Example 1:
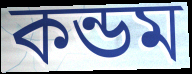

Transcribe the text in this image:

কন্ডম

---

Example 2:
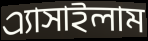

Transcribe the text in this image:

এ্যাসাইলাম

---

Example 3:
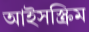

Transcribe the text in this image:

আইসস্ক্রিম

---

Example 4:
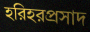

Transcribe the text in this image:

হরিহরপ্রসাদ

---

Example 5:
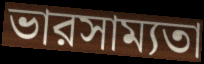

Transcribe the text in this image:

ভারসাম্যতা